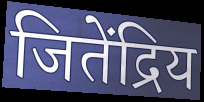
जितेंद्रिय